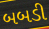
બબડી